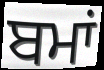
ਬਮਾਂ